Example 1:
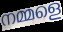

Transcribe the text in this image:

നമ്മളെ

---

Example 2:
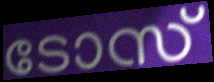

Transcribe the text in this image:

ടോസ്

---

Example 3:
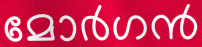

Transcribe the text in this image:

മോർഗൻ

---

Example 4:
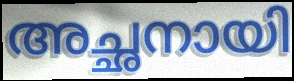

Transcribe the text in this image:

അച്ഛനായി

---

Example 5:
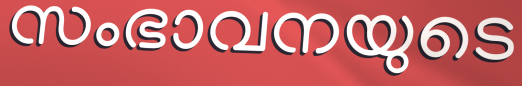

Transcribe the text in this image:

സംഭാവനയുടെ